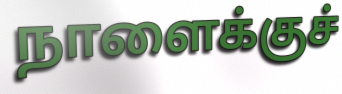
நாளைக்குச்